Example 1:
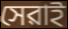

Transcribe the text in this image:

সেৱাই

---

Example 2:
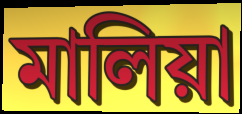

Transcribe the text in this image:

মালিয়া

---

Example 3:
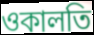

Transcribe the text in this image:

ওকালতি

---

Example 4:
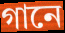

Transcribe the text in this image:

গানে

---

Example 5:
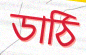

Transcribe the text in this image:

ডাঠি